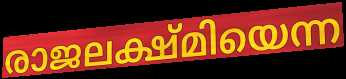
രാജലക്ഷ്മിയെന്ന